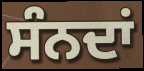
ਸੰਨਦਾਂ